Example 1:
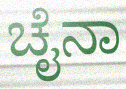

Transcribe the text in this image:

ಚೈನಾ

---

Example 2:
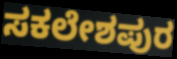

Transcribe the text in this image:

ಸಕಲೇಶಪುರ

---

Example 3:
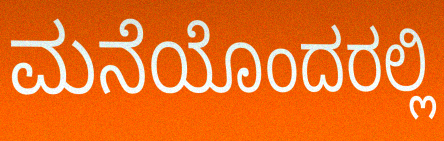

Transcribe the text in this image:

ಮನೆಯೊಂದರಲ್ಲಿ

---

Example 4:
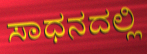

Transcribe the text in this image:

ಸಾಧನದಲ್ಲಿ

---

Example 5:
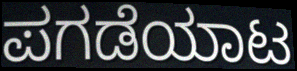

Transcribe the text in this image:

ಪಗಡೆಯಾಟ